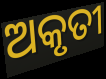
ଅକୃତୀ